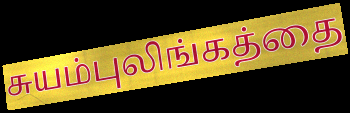
சுயம்புலிங்கத்தை